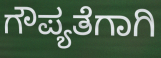
ಗೌಪ್ಯತೆಗಾಗಿ